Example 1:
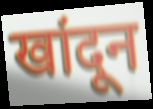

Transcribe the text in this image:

खांदून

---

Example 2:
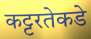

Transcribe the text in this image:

कट्टरतेकडे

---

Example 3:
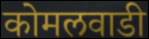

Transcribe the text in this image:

कोमलवाडी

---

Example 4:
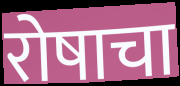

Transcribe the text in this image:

रोषाचा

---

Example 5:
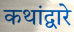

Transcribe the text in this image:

कथांद्वारे